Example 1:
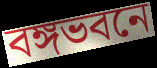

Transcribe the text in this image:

বঙ্গভবনে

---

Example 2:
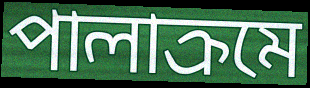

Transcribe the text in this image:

পালাক্রমে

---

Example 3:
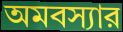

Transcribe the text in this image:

অমবস্যার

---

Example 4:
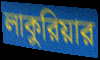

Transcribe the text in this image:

লাকুরিয়ার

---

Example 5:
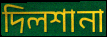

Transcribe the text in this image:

দিলশানা